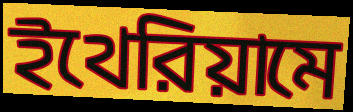
ইথেরিয়ামে